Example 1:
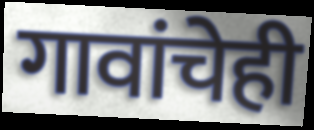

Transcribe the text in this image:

गावांचेही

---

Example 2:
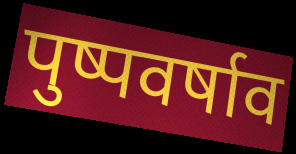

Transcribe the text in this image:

पुष्पवर्षाव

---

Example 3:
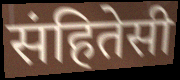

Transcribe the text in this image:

संहितेसी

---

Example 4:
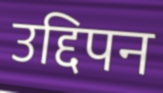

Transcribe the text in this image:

उद्दिपन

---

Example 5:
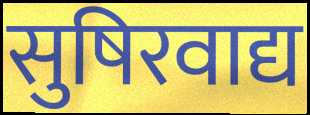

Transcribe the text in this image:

सुषिरवाद्य